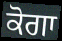
ਕੋਗਾ